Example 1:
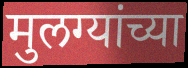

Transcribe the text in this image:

मुलग्यांच्या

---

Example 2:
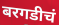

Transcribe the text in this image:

बरगडीचं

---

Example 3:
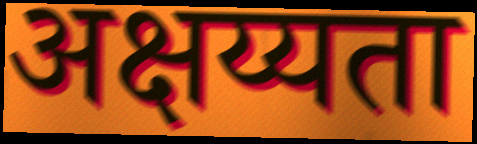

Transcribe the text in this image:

अक्षय्यता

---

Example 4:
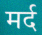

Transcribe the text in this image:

मर्द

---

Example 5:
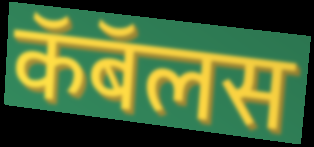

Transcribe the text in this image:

कॅबॅलस